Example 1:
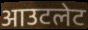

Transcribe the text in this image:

आउटलेट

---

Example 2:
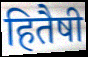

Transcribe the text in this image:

हितैषी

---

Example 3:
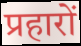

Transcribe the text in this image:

प्रहारों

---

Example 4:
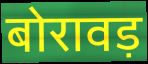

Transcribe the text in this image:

बोरावड़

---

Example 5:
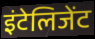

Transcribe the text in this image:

इंटेलिजेंट